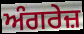
ਅੰਗਰੇਜ਼